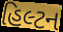
હિલ્ટન